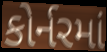
કોર્નરમાં